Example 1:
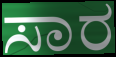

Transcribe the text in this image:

ಸಾರ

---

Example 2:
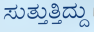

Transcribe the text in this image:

ಸುತ್ತುತ್ತಿದ್ದು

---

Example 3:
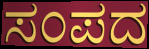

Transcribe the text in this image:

ಸಂಪದ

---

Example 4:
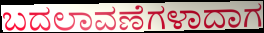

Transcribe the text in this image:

ಬದಲಾವಣೆಗಳಾದಾಗ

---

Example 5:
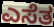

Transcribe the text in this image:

ಎಸೆತ